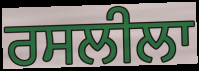
ਰਸਲੀਲਾ